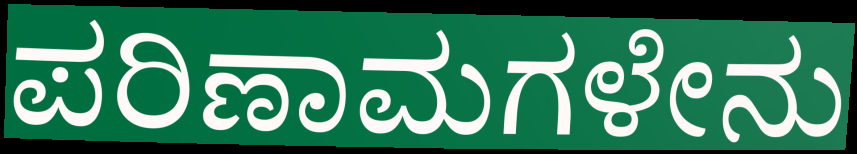
ಪರಿಣಾಮಗಳೇನು